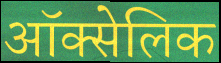
ऑक्सेलिक